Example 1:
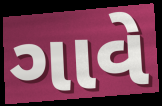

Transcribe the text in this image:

ગાવે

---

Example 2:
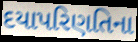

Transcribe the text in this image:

દયાપરિણતિના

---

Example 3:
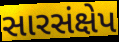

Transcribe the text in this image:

સારસંક્ષેપ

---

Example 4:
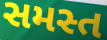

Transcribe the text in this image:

સમસ્ત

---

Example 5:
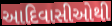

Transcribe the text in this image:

આદિવાસીઓથી